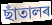
ছাঁতালৰ